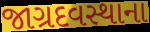
જાગ્રદવસ્થાના